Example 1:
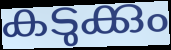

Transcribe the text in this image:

കടുക്കും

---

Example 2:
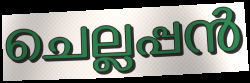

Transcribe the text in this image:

ചെല്ലപ്പൻ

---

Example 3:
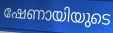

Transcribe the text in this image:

ഷേണായിയുടെ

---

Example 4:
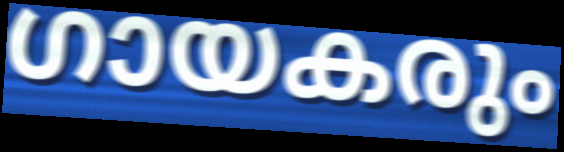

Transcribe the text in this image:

ഗായകരും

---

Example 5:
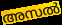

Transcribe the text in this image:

അസൽ